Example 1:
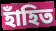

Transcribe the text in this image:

হাঁহিত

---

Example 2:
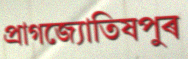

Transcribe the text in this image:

প্ৰাগজ্যোতিষপুৰ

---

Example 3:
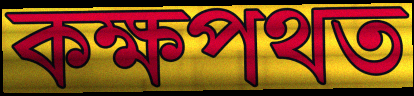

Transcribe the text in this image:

কক্ষপথত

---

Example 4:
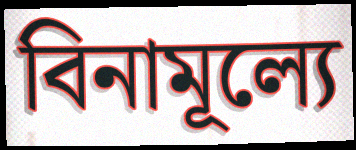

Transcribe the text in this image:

বিনামূল্যে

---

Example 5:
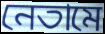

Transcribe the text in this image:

নেতামে